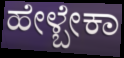
ಹೇಳ್ಬೇಕಾ